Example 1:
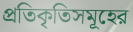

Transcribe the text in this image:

প্রতিকৃতিসমূহের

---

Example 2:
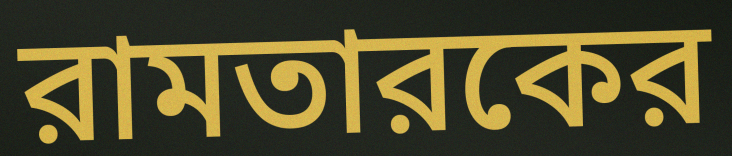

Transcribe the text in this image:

রামতারকের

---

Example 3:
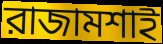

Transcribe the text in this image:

রাজামশাই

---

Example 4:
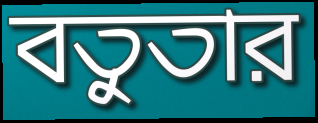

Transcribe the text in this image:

বতুতার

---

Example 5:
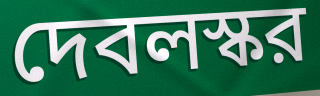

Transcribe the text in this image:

দেবলস্কর